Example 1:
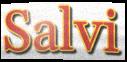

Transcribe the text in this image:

Salvi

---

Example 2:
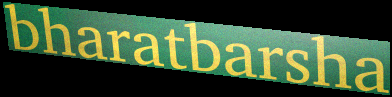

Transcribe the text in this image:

bharatbarsha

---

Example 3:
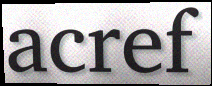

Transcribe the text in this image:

acref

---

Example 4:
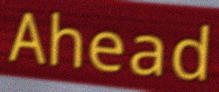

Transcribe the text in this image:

Ahead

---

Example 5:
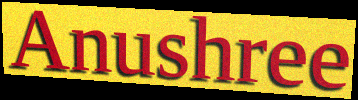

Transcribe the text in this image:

Anushree